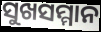
ସୁଖସମ୍ମାନ